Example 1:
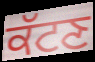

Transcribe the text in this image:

ਕੱਟਣ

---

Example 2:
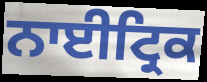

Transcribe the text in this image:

ਨਾਈਟ੍ਰਿਕ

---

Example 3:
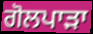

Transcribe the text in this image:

ਗੋਲਪਾੜਾ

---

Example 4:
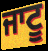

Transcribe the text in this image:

ਜਾਟੂ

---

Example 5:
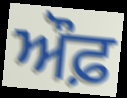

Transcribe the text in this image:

ਔਫ਼